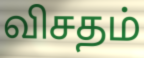
விசதம்